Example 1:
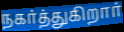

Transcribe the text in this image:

நகர்த்துகிறார்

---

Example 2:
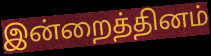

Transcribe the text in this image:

இன்றைத்தினம்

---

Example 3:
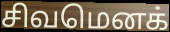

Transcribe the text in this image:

சிவமெனக்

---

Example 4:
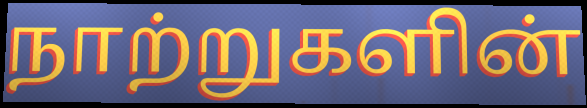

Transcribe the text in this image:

நாற்றுகளின்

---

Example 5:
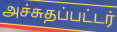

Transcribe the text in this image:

அச்சுதப்பட்டர்